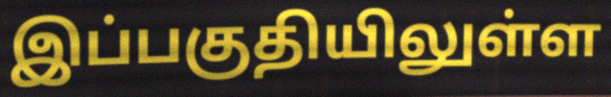
இப்பகுதியிலுள்ள